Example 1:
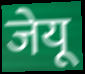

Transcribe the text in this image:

जेयू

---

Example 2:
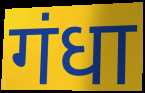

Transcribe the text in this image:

गंधा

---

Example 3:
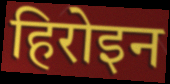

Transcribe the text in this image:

हिरोइन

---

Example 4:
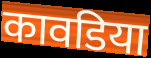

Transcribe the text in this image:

कावडिया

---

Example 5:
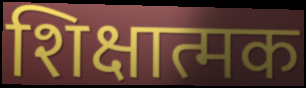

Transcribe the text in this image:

शिक्षात्मक